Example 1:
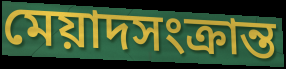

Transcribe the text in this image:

মেয়াদসংক্রান্ত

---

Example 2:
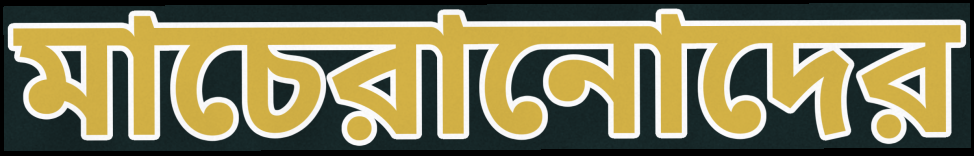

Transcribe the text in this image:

মাচেরানোদের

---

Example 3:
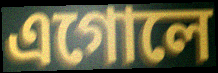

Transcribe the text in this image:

এগোলে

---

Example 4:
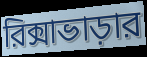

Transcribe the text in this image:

রিক্সাভাড়ার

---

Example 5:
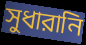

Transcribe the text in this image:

সুধারানি